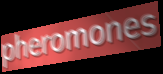
pheromones